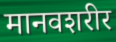
मानवशरीर